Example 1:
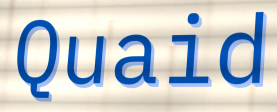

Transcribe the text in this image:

Quaid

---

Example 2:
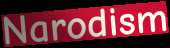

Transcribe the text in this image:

Narodism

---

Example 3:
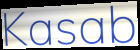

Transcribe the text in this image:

Kasab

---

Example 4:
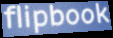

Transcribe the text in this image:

flipbook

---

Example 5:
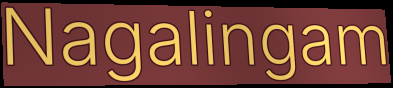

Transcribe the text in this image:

Nagalingam